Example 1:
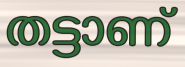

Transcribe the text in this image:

തട്ടാണ്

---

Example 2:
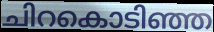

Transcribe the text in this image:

ചിറകൊടിഞ്ഞ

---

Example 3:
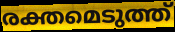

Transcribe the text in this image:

രക്തമെടുത്ത്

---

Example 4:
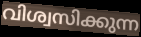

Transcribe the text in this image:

വിശ്വസിക്കുന്ന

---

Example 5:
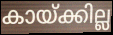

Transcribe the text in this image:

കായ്ക്കില്ല